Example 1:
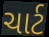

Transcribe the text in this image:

ચાર્ટ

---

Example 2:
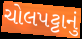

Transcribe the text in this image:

ચોલપટ્ટાનું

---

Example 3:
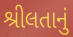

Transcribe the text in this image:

શ્રીલતાનું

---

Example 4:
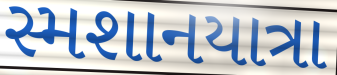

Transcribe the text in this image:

સ્મશાનયાત્રા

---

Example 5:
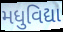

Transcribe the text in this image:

મધુવિદ્યા